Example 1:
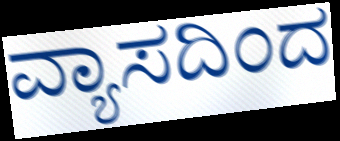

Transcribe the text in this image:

ವ್ಯಾಸದಿಂದ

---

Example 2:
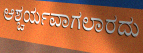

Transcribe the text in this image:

ಆಶ್ಚರ್ಯವಾಗಲಾರದು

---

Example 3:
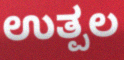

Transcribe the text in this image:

ಉತ್ಪಲ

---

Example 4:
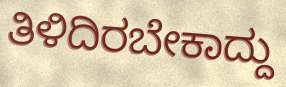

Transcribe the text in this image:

ತಿಳಿದಿರಬೇಕಾದ್ದು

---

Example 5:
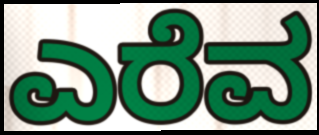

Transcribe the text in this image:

ಎರೆವ